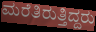
ಮರೆತಿರುತ್ತಿದ್ದರು